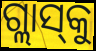
ଗ୍ଲାସ୍‌କୁ